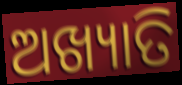
ଅଖ୍ୟାତି